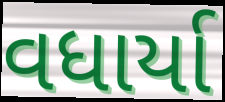
વધાર્યા